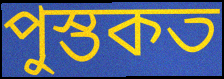
পুস্তকত